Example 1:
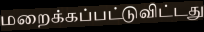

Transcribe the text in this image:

மறைக்கப்பட்டுவிட்டது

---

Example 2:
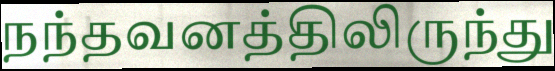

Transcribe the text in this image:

நந்தவனத்திலிருந்து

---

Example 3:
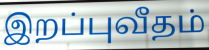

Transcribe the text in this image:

இறப்புவீதம்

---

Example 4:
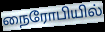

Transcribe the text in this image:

நைரோபியில்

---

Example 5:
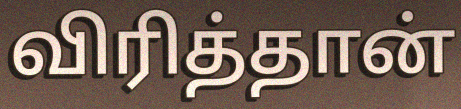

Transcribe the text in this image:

விரித்தான்